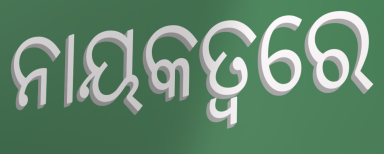
ନାୟକତ୍ବରେ